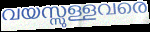
വയസ്സുള്ളവരെ